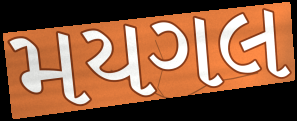
મયગલ